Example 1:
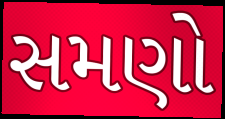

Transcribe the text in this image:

સમણો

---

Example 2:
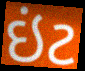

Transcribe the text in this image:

ઇંટ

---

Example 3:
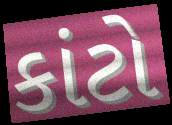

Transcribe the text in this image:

કાંટો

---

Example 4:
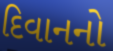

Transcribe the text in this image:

દિવાનનો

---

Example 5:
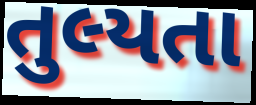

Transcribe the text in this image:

તુલ્યતા